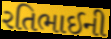
રતિભાઈની